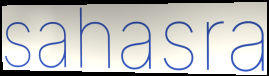
sahasra